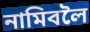
নামিবলৈ